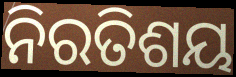
ନିରତିଶୟ